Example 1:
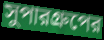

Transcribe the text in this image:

সুপারগ্রুপের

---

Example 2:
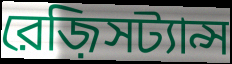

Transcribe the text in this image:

রেজ়িসট্যান্স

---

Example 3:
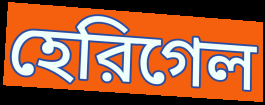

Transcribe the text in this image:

হেরিগেল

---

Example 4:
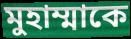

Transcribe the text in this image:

মুহাম্মাকে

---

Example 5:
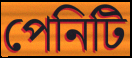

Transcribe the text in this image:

পেনিটি